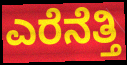
ಎರೆನೆತ್ತಿ